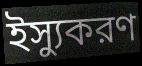
ইস্যুকরণ